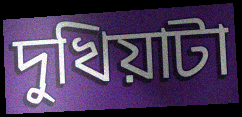
দুখিয়াটা